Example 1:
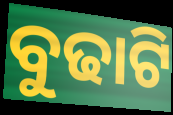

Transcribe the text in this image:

ବୁଢାଟି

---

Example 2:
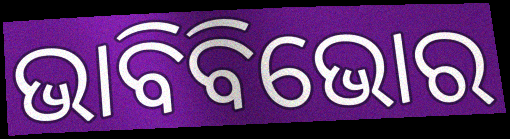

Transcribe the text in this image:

ଭାବିବିଭୋର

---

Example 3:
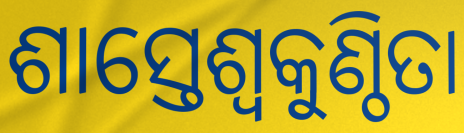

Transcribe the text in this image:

ଶାସ୍ତେଶ୍ବକୁଣ୍ଠିତା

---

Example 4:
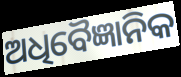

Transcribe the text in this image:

ଅଧିବୈଜ୍ଞାନିକ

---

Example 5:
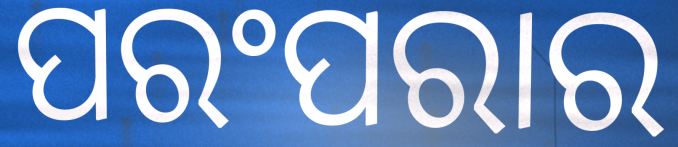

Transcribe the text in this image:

ପରଂପରାର